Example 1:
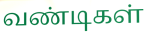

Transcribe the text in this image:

வண்டிகள்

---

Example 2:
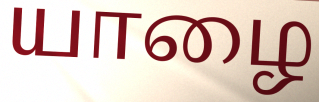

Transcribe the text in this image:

யாழை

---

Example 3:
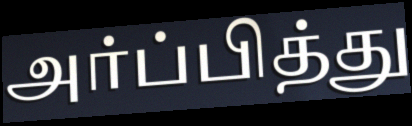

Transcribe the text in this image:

அர்ப்பித்து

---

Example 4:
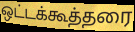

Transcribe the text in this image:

ஒட்டக்கூத்தரை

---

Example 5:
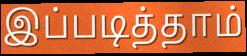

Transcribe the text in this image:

இப்படித்தாம்